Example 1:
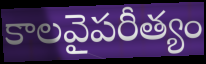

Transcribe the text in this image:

కాలవైపరీత్యం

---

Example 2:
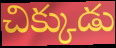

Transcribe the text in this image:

చిక్కుడు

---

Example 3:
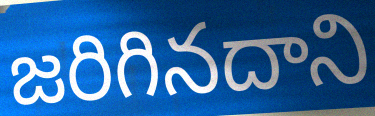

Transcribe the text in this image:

జరిగినదాని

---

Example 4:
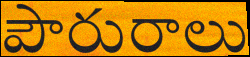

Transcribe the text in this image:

పౌరురాలు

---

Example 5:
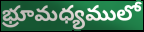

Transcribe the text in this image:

భ్రూమధ్యములో